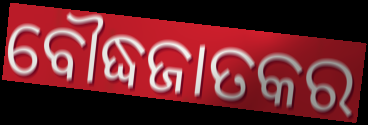
ବୌଦ୍ଧଜାତକର